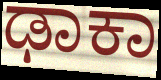
ಢಾಕಾ